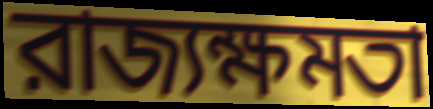
রাজ্যক্ষমতা